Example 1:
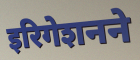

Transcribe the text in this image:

इरिगेशनने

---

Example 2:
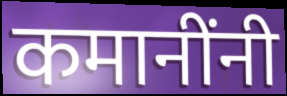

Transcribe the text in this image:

कमानींनी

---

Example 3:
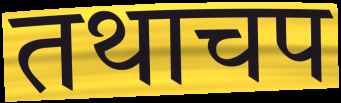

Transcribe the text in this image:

तथाचप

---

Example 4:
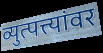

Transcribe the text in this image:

व्युत्पत्त्यांवर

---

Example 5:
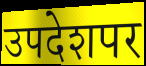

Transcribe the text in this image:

उपदेशपर